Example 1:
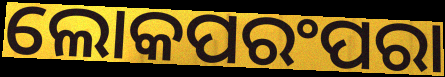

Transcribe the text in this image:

ଲୋକପରଂପରା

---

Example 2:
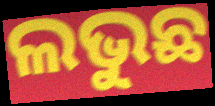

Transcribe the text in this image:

ଲଭୁଛ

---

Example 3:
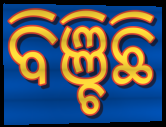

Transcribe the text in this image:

ବିଞ୍ଚିଛି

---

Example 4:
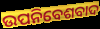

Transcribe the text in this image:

ଉପନିବେଶବାଦ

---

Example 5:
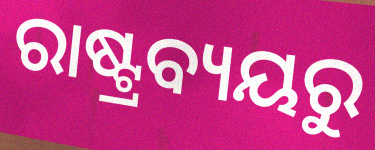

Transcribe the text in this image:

ରାଷ୍ଟ୍ରବ୍ୟୟରୁ